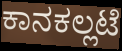
ಕಾನಕಲ್ಲಟೆ